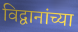
विद्वानांच्या